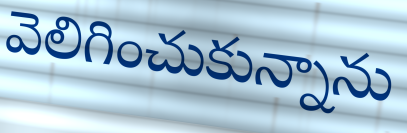
వెలిగించుకున్నాను